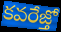
కవరేజ్తో